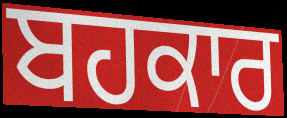
ਬਹਕਾਰ